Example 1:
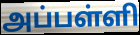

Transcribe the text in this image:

அப்பள்ளி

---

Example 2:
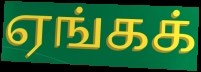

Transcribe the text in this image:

ஏங்கக்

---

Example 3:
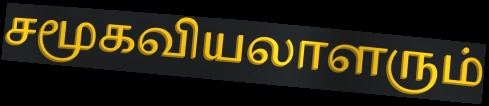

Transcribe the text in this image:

சமூகவியலாளரும்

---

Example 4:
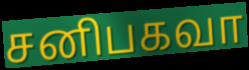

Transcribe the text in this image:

சனிபகவா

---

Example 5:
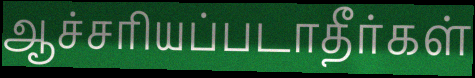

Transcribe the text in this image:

ஆச்சரியப்படாதீர்கள்